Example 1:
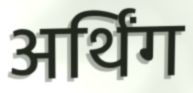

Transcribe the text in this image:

अर्थिंग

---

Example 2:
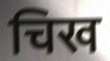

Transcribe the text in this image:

चिख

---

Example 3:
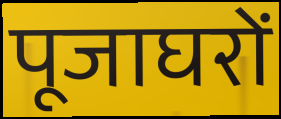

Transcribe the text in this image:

पूजाघरों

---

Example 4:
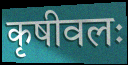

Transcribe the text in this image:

कृषीवलः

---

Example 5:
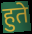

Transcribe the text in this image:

हुते